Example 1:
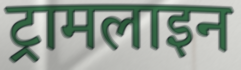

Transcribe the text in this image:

ट्रामलाइन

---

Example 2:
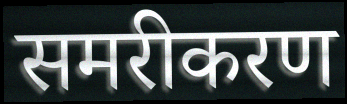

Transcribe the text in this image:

समरीकरण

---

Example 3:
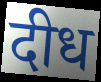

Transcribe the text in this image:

दीध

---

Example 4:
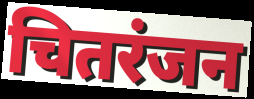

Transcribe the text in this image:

चितरंजन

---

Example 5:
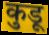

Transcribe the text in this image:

कुडू